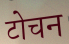
टोचन